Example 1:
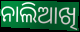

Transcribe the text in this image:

ନାଲିଆଖି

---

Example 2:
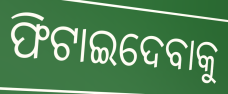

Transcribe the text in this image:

ଫିଟାଇଦେବାକୁ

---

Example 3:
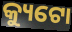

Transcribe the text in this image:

କ୍ୟୁଟୋ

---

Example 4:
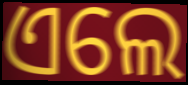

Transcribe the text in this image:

ଏଲେ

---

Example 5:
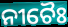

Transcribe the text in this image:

ନୀଚୈଃ